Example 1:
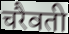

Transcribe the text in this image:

चरैवती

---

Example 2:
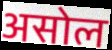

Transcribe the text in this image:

असोल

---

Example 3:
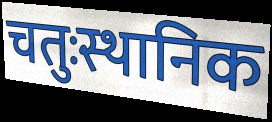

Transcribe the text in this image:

चतुःस्थानिक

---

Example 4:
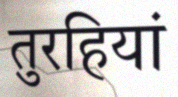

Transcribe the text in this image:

तुरहियां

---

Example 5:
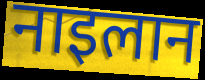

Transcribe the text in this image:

नाइलान